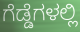
ಗೆಡ್ಡೆಗಳಲ್ಲಿ